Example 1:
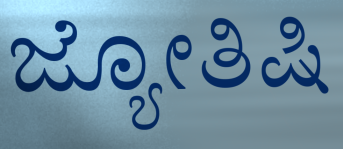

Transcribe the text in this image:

ಜ್ಯೋತಿಷಿ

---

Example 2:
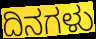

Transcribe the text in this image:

ದಿನಗಳು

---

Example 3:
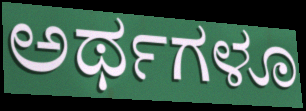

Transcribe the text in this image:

ಅರ್ಥಗಳೂ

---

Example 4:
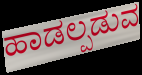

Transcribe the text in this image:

ಹಾಡಲ್ಪಡುವ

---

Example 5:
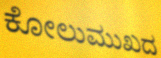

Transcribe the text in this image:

ಕೋಲುಮುಖದ